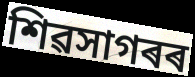
শিৱসাগৰৰ